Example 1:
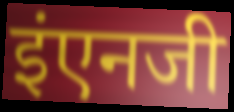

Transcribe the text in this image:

इंएनजी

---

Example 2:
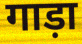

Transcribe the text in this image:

गाड़ा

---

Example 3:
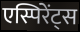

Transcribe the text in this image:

एस्पिरेंट्स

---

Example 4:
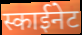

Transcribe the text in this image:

स्काईनेट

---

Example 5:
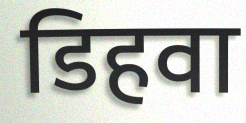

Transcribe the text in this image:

डिहवा